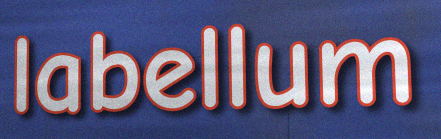
labellum